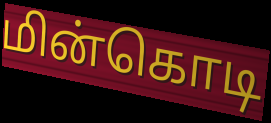
மின்கொடி